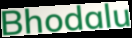
Bhodalu